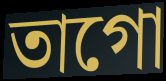
তাগো